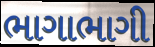
ભાગાભાગી